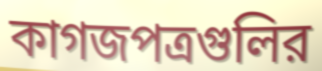
কাগজপত্রগুলির